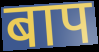
बाप